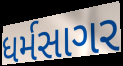
ધર્મસાગર